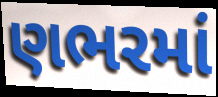
ણભરમાં